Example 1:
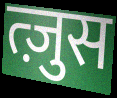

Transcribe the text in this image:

त्ज़ुस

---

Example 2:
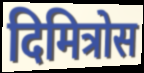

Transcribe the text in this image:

दिमित्रोस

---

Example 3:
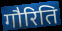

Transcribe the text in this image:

गौरिति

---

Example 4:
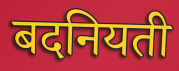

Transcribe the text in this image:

बदनियती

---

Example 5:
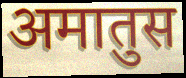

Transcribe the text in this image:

अमातुस